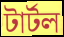
টার্টল